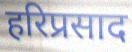
हरिप्रसाद